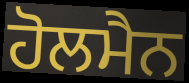
ਹੋਲਮੈਨ